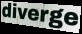
diverge